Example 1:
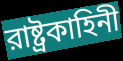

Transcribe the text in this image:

রাষ্ট্রকাহিনী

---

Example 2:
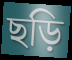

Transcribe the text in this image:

ছড়ি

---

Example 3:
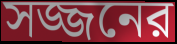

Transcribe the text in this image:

সজ্জনের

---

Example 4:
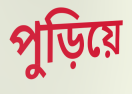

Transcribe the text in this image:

পুড়িয়ে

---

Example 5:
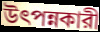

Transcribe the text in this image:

উৎপন্নকারী